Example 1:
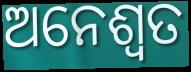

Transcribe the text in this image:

ଅନେଶ୍ଵତ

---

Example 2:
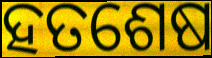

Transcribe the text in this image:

ହତଶେଷ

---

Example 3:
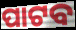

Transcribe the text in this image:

ପାଟବ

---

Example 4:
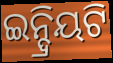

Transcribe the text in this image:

ଇନ୍ଦ୍ରିୟଟି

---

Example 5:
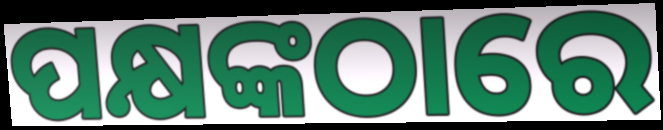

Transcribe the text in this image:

ପକ୍ଷଙ୍କଠାରେ